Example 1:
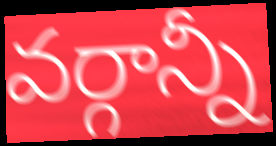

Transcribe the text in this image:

వర్గాన్నీ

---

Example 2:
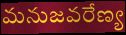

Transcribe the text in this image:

మనుజవరేణ్య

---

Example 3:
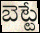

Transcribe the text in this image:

బెట్టే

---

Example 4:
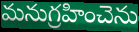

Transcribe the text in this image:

మనుగ్రహించెను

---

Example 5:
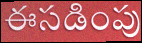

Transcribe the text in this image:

ఈసడింపు